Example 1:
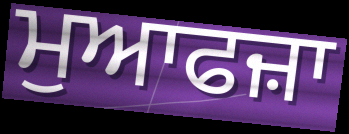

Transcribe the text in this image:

ਮੁਆਫਜ਼ਾ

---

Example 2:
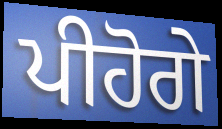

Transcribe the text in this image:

ਪੀਹੋਗੇ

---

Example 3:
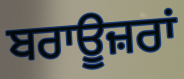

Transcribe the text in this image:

ਬਰਾਊਜ਼ਰਾਂ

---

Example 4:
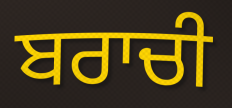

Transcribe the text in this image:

ਬਰਾਚੀ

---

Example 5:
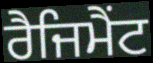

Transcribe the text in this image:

ਰੈਜਿਮੈਂਟ